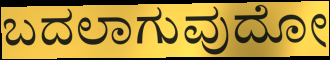
ಬದಲಾಗುವುದೋ